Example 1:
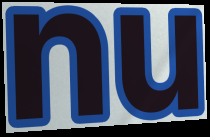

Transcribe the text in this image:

nu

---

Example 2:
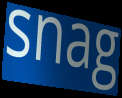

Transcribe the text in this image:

snag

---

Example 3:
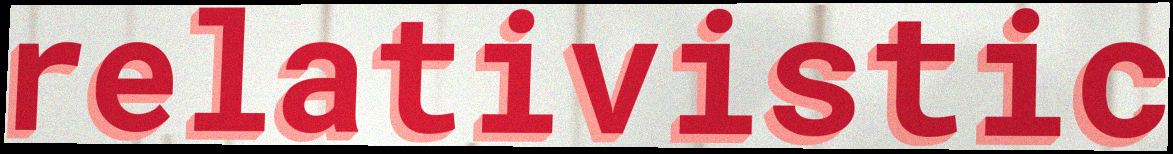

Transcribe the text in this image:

relativistic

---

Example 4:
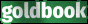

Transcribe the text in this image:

goldbook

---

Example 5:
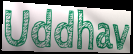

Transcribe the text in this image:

Uddhav